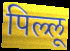
पिल्लू